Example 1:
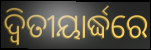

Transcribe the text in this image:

ଦ୍ବିତୀୟାର୍ଦ୍ଧରେ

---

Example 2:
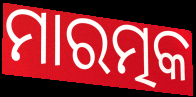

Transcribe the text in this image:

ମାରତ୍ମକ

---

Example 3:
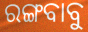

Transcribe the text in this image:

ରଙ୍ଗବାବୁ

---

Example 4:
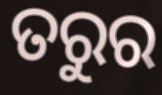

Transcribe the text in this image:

ତରୁର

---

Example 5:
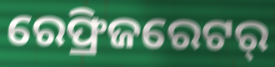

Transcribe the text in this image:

ରେଫ୍ରିଜରେଟର୍